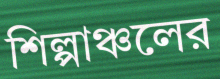
শিল্পাঞ্চলের